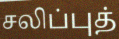
சலிப்புத்